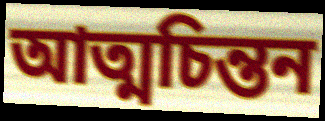
আত্মচিন্তন